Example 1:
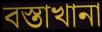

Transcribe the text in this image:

বস্তাখানা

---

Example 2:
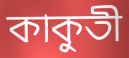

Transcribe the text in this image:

কাকুতী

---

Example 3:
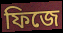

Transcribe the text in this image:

ফিজে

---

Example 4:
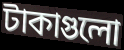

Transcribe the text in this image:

টাকাগুলো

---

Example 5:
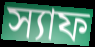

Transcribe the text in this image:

স্যাফ